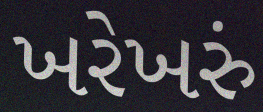
ખરેખરું